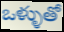
ఒళ్ళుతో